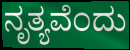
ನೃತ್ಯವೆಂದು